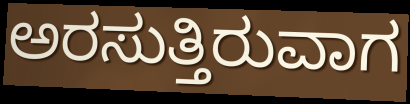
ಅರಸುತ್ತಿರುವಾಗ